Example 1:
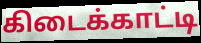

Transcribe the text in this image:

கிடைக்காட்டி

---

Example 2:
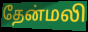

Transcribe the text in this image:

தேன்மலி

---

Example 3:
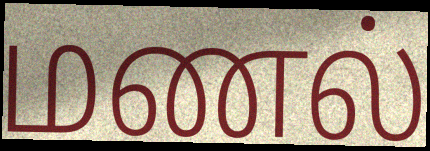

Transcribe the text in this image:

மணல்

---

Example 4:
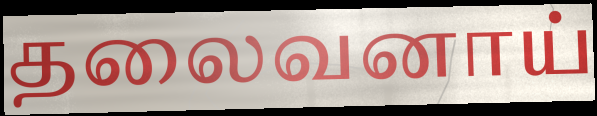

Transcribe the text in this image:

தலைவனாய்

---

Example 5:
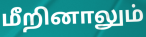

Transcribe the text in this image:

மீறினாலும்